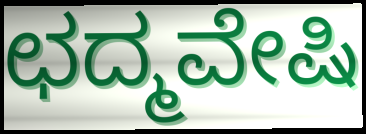
ಛದ್ಮವೇಷಿ